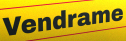
Vendrame